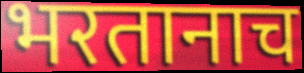
भरतानाच